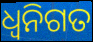
ଧ୍ଵନିଗତ